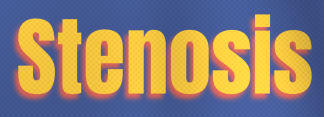
Stenosis